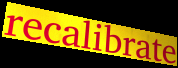
recalibrate